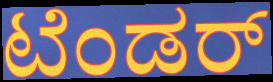
ಟೆಂಡರ್